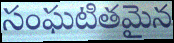
సంఘటితమైన